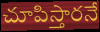
చూపిస్తారనే